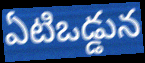
ఏటిఒడ్డున